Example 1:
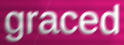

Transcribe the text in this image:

graced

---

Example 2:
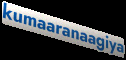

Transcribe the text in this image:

kumaaranaagiya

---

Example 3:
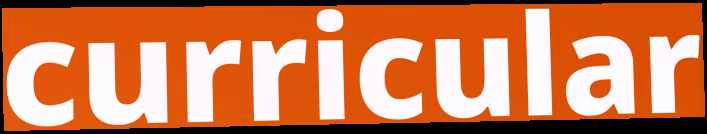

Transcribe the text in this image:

curricular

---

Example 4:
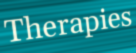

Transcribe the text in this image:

Therapies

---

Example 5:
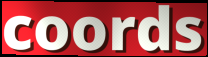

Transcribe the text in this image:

coords